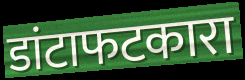
डांटाफटकारा